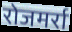
रोजमर्रा